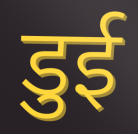
डुई